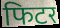
फिटर